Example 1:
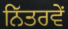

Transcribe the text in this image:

ਨਿੱਤਰਵੇਂ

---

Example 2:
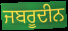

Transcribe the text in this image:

ਜਬਰੂਦੀਨ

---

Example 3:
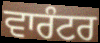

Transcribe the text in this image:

ਵਾਰੰਟਰ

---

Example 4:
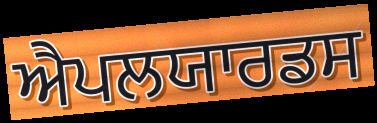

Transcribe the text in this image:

ਐਪਲਯਾਰਡਸ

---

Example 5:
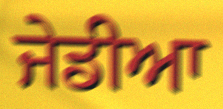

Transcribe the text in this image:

ਜੇਡੀਆ